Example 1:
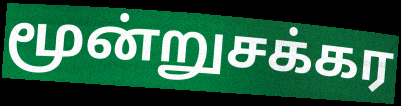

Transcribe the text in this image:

மூன்றுசக்கர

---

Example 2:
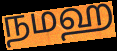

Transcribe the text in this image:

நமஹ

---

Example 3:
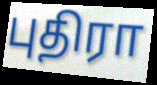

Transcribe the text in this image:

புதிரா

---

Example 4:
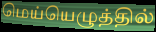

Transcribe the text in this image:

மெய்யெழுத்தில்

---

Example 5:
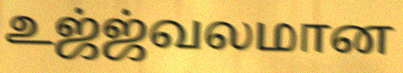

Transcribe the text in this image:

உஜ்ஜ்வலமான